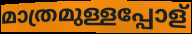
മാത്രമുള്ളപ്പോള്